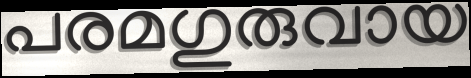
പരമഗുരുവായ